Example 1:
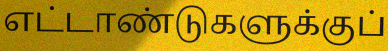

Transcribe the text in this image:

எட்டாண்டுகளுக்குப்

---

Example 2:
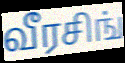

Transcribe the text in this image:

வீரசிங்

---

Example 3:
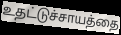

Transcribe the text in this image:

உதட்டுச்சாயத்தை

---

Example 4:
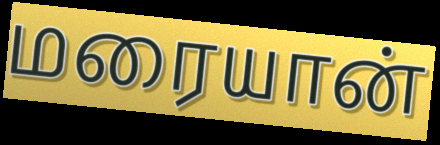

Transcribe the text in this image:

மரையான்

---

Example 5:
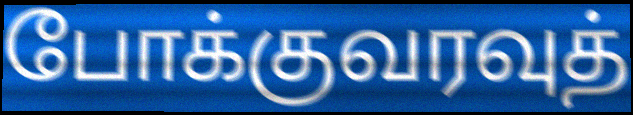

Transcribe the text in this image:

போக்குவரவுத்